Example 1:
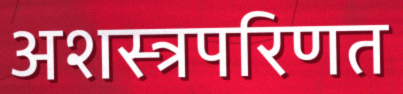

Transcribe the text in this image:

अशस्त्रपरिणत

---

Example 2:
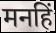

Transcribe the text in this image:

मनहिं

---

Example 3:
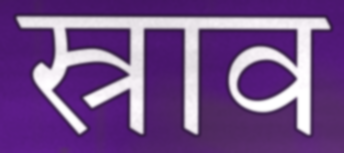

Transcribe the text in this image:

स्राव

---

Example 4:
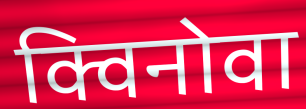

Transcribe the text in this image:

क्विनोवा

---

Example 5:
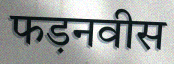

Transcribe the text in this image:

फड़नवीस